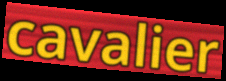
cavalier